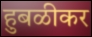
हुबळीकर